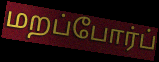
மறப்போர்ப்